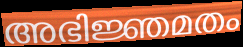
അഭിജ്ഞമതം